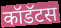
कॉडॅटस